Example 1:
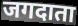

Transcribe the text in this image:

जगदाता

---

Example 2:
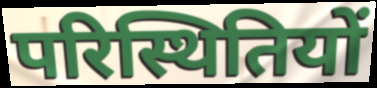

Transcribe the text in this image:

परिस्थितियों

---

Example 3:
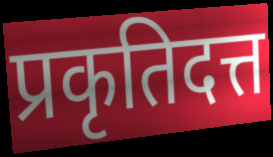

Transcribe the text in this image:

प्रकृतिदत्त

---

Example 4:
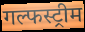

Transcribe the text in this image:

गल्फस्ट्रीम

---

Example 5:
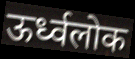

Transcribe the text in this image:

ऊर्ध्वलोक